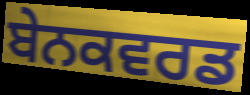
ਬੇਨਕਵਰਡ